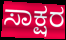
ಸಾಕ್ಷರ